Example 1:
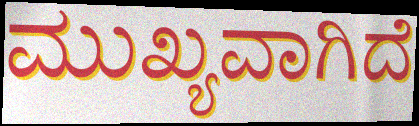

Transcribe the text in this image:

ಮುಖ್ಯವಾಗಿದೆ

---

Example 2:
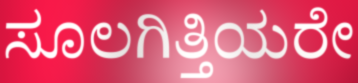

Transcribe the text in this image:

ಸೂಲಗಿತ್ತಿಯರೇ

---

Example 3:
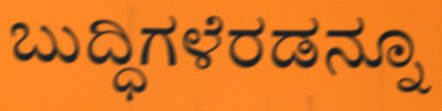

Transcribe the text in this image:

ಬುದ್ಧಿಗಳೆರಡನ್ನೂ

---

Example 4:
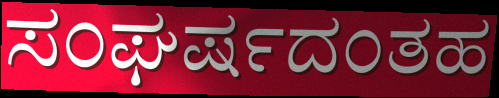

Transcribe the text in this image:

ಸಂಘರ್ಷದಂತಹ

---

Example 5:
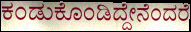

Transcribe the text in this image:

ಕಂಡುಕೊಂಡಿದ್ದೇನೆಂದರೆ